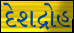
દેશદ્રોહ